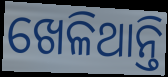
ଖେଳିଥାନ୍ତି